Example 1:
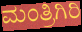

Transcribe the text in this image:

ಮಂತ್ರಿಗಿರಿ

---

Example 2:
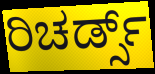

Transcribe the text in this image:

ರಿಚರ್ಡ್ಸ್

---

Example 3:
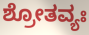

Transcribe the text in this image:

ಶ್ರೋತವ್ಯಃ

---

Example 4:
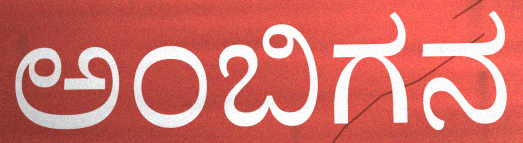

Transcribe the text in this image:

ಅಂಬಿಗನ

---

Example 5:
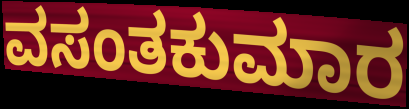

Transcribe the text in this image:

ವಸಂತಕುಮಾರ